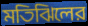
মতিঝিলের